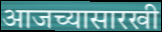
आजच्यासारखी